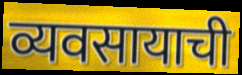
व्यवसायाची